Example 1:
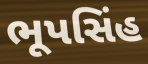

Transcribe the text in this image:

ભૂપસિંહ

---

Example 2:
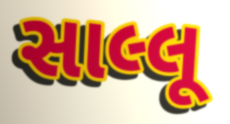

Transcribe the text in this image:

સાલ્લૂ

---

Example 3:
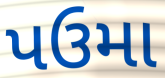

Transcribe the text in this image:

પઉમા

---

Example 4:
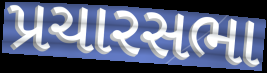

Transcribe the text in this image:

પ્રચારસભા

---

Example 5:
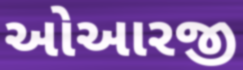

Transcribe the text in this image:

ઓઆરજી